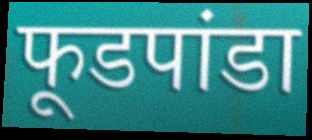
फूडपांडा